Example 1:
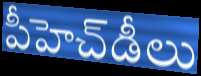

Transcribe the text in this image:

పీహెచ్‌డీలు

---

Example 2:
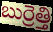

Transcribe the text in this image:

బుర్రెత్తి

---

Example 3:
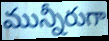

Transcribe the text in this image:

మున్నీరుగా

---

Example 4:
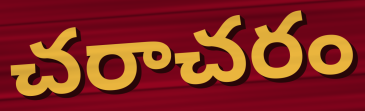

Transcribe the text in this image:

చరాచరం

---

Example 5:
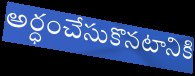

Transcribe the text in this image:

అర్ధంచేసుకొనటానికి